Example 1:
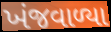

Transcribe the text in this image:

ખંજવાળ્યા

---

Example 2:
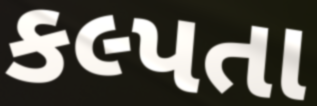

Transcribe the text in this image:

કલ્પતા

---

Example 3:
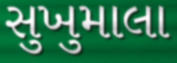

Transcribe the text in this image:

સુખુમાલા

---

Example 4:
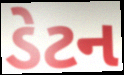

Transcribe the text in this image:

ડેટન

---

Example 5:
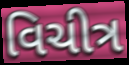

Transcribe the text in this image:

વિચીત્ર